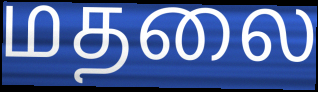
மதலை